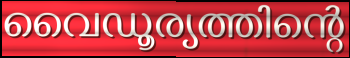
വൈഡൂര്യത്തിന്റെ